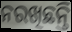
ନରଖିଛନ୍ତି